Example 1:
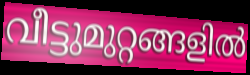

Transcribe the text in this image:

വീട്ടുമുറ്റങ്ങളിൽ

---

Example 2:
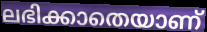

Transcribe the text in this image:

ലഭിക്കാതെയാണ്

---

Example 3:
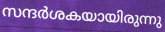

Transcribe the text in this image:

സന്ദർശകയായിരുന്നു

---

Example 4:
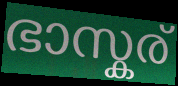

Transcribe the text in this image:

ഭാസ്കര്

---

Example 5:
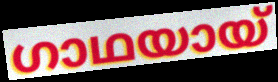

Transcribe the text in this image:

ഗാഥയായ്